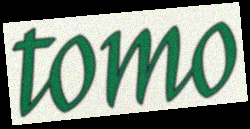
tomo